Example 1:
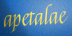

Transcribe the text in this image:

apetalae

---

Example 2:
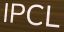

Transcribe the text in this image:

IPCL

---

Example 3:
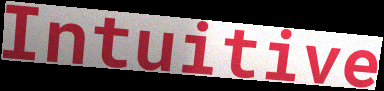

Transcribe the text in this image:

Intuitive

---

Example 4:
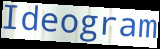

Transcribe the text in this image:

Ideogram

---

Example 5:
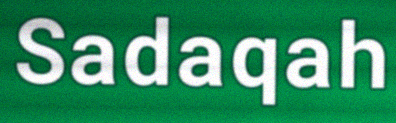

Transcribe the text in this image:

Sadaqah